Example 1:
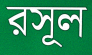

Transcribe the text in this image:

রসূল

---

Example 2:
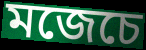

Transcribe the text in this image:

মজেচে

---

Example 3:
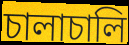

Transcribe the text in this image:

চালাচালি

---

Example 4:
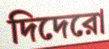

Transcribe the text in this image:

দিদেরো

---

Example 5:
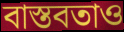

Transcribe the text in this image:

বাস্তবতাও